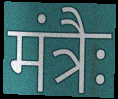
मंत्रैः